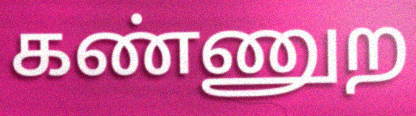
கண்ணுற